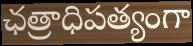
ఛత్రాధిపత్యంగా